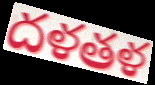
దళతళ